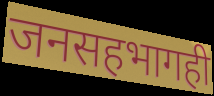
जनसहभागही